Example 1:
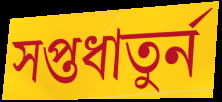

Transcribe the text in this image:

সপ্তধাতুর্ন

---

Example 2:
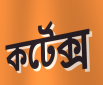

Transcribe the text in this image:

কর্টেক্স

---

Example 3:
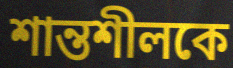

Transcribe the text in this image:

শান্তশীলকে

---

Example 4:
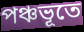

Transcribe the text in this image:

পঞ্চভূতে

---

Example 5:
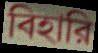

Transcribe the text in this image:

বিহারি